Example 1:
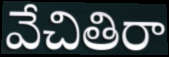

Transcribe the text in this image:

వేచితిరా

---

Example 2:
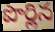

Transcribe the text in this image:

పొర్లిన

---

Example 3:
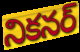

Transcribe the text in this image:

నికనర్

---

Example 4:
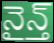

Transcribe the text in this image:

నైన్త్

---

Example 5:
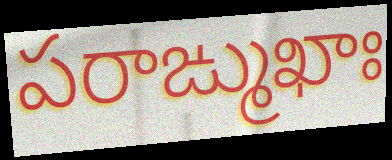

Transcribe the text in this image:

పరాఙ్ముఖాః